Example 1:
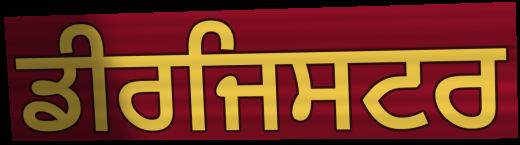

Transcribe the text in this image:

ਡੀਰਜਿਸਟਰ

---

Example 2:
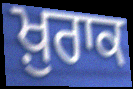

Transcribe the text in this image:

ਖ਼ੁਰਾਕ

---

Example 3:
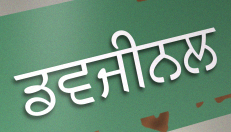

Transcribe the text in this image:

ਡਵਜੀਨਲ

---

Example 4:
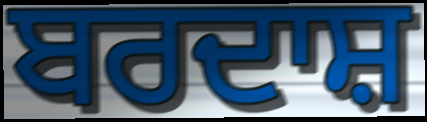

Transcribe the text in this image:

ਬਰਦਾਸ਼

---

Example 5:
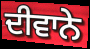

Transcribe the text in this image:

ਦੀਵਾਨੇ